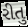
રીતુ